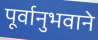
पूर्वानुभवाने